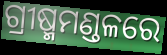
ଗ୍ରୀଷ୍ମମଣ୍ଡଳରେ